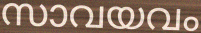
സാവയവം